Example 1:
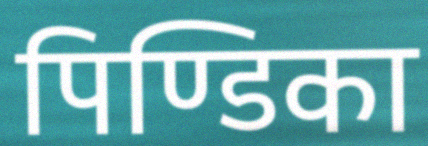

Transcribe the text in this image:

पिण्डिका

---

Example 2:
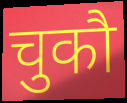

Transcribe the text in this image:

चुकौ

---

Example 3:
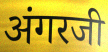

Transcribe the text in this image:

अंगरजी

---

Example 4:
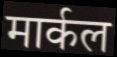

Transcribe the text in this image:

मार्कल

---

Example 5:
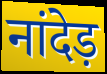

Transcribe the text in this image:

नांदेड़